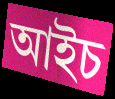
আইচ